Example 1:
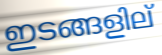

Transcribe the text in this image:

ഇടങ്ങളില്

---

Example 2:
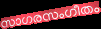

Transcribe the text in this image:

സാഗരസംഗീതം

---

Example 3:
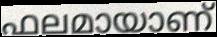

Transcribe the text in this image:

ഫലമായാണ്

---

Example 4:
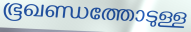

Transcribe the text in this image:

ഭൂഖണ്ഡത്തോടുള്ള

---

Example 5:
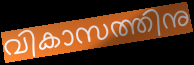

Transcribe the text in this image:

വികാസത്തിനു